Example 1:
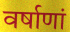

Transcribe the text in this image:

वर्षाणां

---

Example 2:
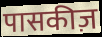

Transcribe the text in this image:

पासकीज़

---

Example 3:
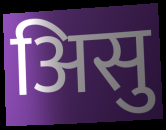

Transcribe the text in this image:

अिसु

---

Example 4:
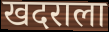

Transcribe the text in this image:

खदराला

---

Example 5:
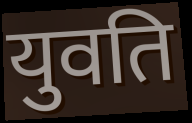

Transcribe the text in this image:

युवति